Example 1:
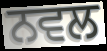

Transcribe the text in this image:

ਨਵਲ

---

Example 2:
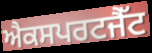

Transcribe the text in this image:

ਐਕਸਪਰਟਜੈੱਟ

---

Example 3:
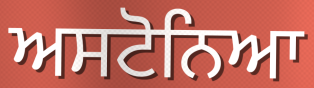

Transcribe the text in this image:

ਅਸਟੋਨਿਆ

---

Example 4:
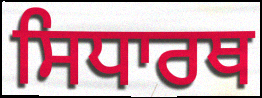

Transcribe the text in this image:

ਸਿਧਾਰਥ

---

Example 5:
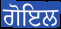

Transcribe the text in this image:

ਗੋਇਲ